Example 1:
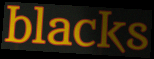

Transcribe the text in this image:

blacks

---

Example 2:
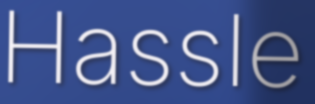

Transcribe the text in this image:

Hassle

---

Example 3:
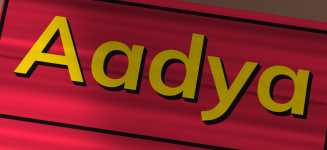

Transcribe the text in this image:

Aadya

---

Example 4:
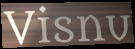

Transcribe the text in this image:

Visnu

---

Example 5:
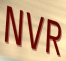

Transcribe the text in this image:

NVR